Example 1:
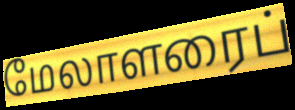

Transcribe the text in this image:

மேலாளரைப்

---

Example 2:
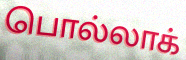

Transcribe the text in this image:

பொல்லாக்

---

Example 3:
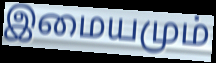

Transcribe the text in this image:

இமையமும்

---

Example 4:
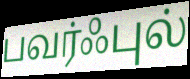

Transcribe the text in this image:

பவர்ஃபுல்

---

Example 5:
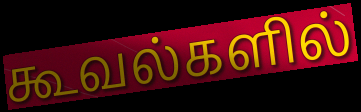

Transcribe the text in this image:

கூவல்களில்